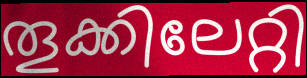
തൂക്കിലേറ്റി